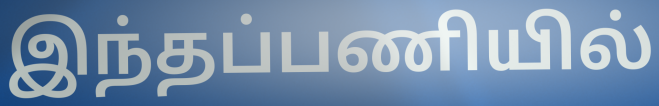
இந்தப்பணியில்